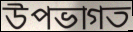
উপভাগত